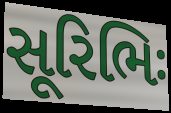
સૂરિભિઃ